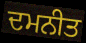
ਦਮਨੀਤ